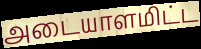
அடையாளமிட்ட